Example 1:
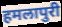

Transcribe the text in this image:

हमलापुरी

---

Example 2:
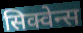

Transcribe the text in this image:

सिक्वेन्स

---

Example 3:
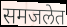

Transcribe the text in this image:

समजलेत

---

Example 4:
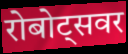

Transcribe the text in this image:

रोबोट्सवर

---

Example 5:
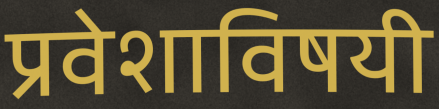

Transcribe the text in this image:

प्रवेशाविषयी